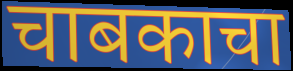
चाबकाचा